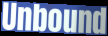
Unbound